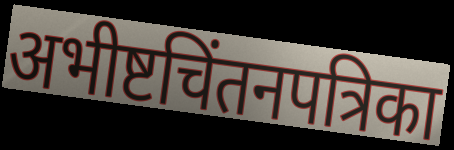
अभीष्टचिंतनपत्रिका